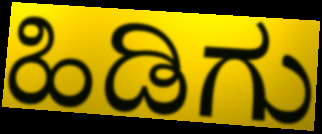
ಹಿಡಿಗು